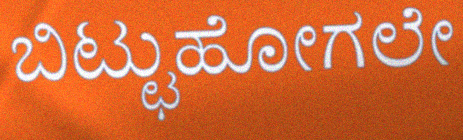
ಬಿಟ್ಟುಹೋಗಲೇ